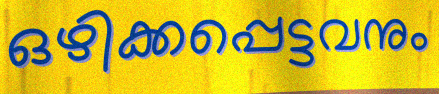
ഒഴിക്കപ്പെട്ടവനും